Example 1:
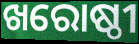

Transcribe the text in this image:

ଖରୋଷ୍ଠୀ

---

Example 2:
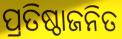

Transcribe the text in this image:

ପ୍ରତିଷ୍ଠାଜନିତ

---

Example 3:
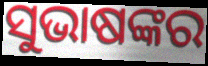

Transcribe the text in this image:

ସୁଭାଷଙ୍କର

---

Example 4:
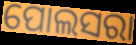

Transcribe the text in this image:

ପୋଲସରା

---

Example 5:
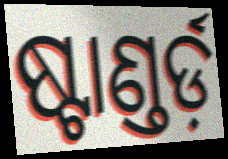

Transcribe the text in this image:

ଷ୍ଟାଣ୍ଡର୍ଡ଼